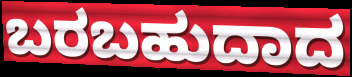
ಬರಬಹುದಾದ